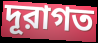
দূরাগত